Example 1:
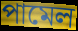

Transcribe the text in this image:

পামেল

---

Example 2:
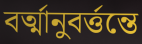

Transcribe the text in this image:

বর্ত্মানুবর্ত্তন্তে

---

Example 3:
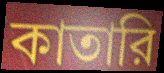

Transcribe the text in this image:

কাতারি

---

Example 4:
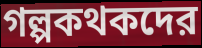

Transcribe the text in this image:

গল্পকথকদের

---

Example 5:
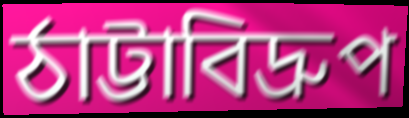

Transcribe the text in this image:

ঠাট্টাবিদ্রুপ